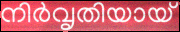
നിർവൃതിയായ്